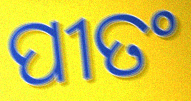
ପୀତଂ